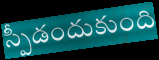
స్పీడందుకుంది